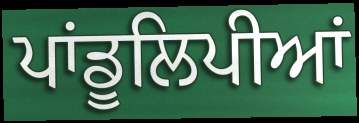
ਪਾਂਡੂਲਿਪੀਆਂ